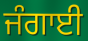
ਜੰਗਾਈ